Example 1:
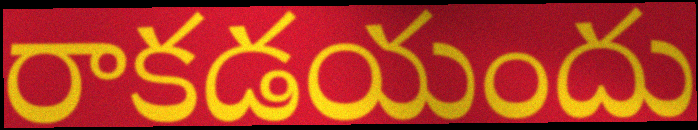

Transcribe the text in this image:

రాకడయందు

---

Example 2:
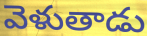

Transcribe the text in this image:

వెళుతాడు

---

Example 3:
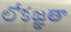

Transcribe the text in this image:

లోకజ్ఞతా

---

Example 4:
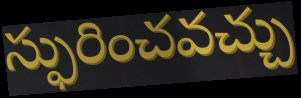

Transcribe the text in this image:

స్ఫురించవచ్చు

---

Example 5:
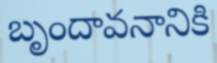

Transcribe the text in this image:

బృందావనానికి